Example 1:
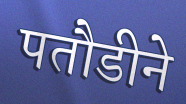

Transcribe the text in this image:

पतौडीने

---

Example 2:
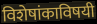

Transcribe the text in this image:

विशेषांकाविषयी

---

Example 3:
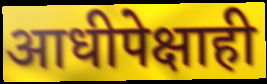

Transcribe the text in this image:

आधीपेक्षाही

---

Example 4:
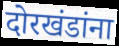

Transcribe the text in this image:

दोरखंडांना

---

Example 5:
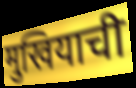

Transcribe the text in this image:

मुखियाची